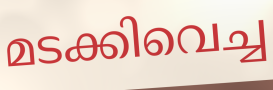
മടക്കിവെച്ച